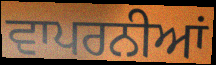
ਵਾਪਰਨੀਆਂ